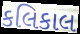
કલિકાલ